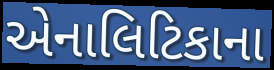
એનાલિટિકાના